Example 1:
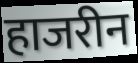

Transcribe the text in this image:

हाजरीन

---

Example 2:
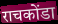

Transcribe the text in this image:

राचकोंडा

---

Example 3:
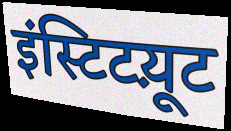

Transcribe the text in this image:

इंस्टिटय़ूट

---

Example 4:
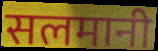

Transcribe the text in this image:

सलमानी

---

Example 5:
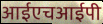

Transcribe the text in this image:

आईएचआईपी